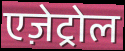
एज़ेट्रोल